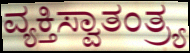
ವ್ಯಕ್ತಿಸ್ವಾತಂತ್ರ್ಯ